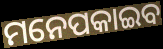
ମନେପକାଇବ